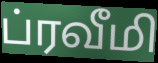
ப்ரவீமி